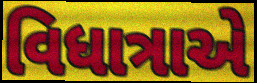
વિધાત્રાએ